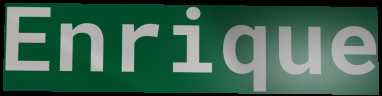
Enrique